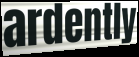
ardently